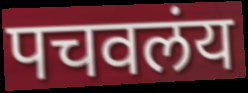
पचवलंय